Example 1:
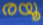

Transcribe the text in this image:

രയൂ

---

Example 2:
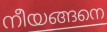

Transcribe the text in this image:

നീയങ്ങനെ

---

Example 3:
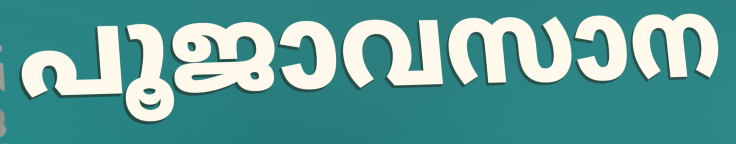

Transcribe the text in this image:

പൂജാവസാന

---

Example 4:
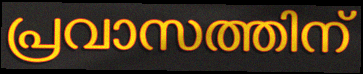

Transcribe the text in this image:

പ്രവാസത്തിന്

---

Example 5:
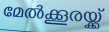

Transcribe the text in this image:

മേൽക്കൂരയ്ക്ക്